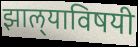
झाल्याविषयी